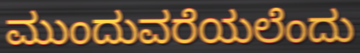
ಮುಂದುವರೆಯಲೆಂದು